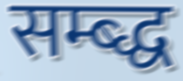
सम्ब्द्ध